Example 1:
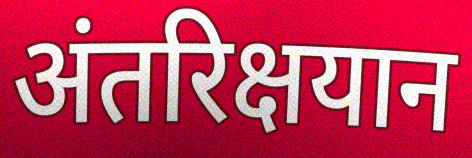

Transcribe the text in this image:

अंतरिक्षयान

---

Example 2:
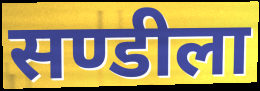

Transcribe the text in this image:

सण्डीला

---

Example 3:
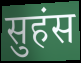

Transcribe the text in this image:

सुहंस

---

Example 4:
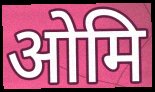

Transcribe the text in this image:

ओमि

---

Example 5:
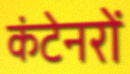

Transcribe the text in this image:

कंटेनरों